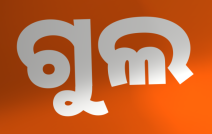
ଗୁଲ